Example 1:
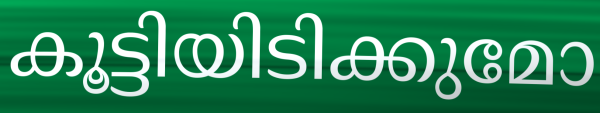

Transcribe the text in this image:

കൂട്ടിയിടിക്കുമോ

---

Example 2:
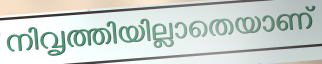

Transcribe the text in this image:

നിവൃത്തിയില്ലാതെയാണ്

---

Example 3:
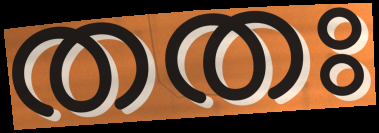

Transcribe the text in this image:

തതഃ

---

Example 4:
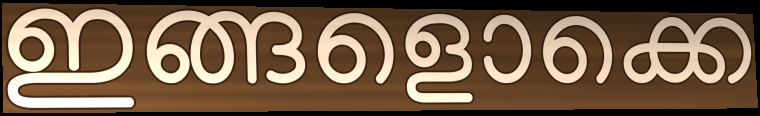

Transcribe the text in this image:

ഇങ്ങളൊക്കെ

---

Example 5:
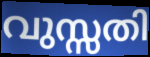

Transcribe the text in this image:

വുസ്സതി